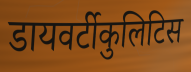
डायवर्टीकुलिटिस